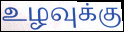
உழவுக்கு